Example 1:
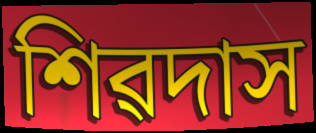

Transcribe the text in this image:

শিৱদাস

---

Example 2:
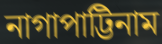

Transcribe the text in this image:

নাগাপাট্টিনাম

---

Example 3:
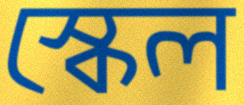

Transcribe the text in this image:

স্কেল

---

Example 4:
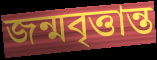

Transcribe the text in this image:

জন্মবৃত্তান্ত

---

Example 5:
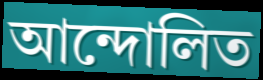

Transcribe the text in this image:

আন্দোলিত